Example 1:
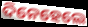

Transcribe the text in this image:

ଦିନେହେଲେ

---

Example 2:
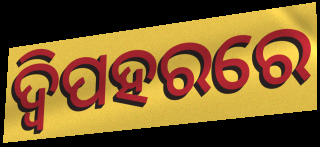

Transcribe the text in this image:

ଦ୍ୱିପହରରେ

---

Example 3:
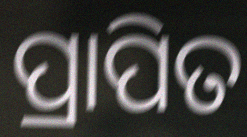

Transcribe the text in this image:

ପ୍ରାପିତ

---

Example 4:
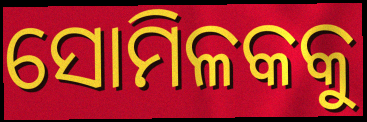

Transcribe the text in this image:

ସୋମିଳକକୁ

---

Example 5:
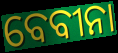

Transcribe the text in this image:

ବେବୀନା